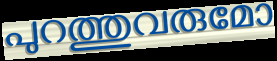
പുറത്തുവരുമോ